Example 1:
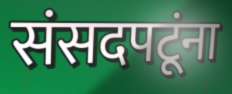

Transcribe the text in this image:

संसदपटूंना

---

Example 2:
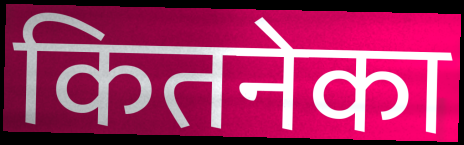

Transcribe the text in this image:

कितनेका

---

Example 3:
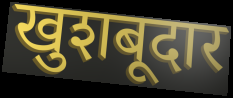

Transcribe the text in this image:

खुशबूदार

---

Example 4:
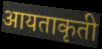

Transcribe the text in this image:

आयताकृती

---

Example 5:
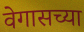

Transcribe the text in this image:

वेगासच्या